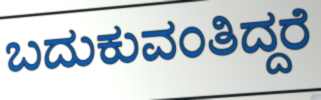
ಬದುಕುವಂತಿದ್ದರೆ